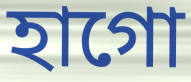
হাগো